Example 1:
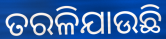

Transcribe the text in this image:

ତରଳିଯାଉଛି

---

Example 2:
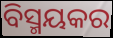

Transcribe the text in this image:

ବିସ୍ମୟକର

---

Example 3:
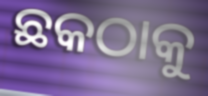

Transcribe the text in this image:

ଛକଠାକୁ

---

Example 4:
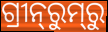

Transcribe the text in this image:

ଗ୍ରୀନ୍‌ରୁମ୍‌ରୁ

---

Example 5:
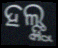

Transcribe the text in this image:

ହଲ୍ଙ୍କୁ